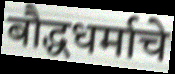
बौद्धधर्माचे